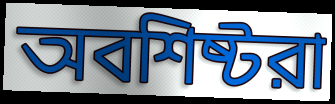
অবশিষ্টরা